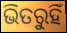
ଭିତରୁହିଁ